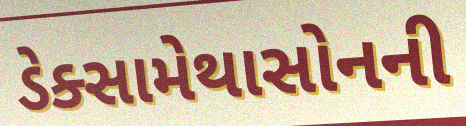
ડેક્સામેથાસોનની